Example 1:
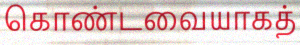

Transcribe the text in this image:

கொண்டவையாகத்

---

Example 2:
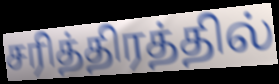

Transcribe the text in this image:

சரித்திரத்தில்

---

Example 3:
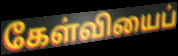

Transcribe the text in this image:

கேள்வியைப்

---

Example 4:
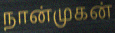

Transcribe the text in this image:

நான்முகன்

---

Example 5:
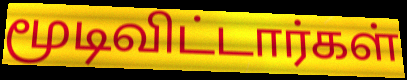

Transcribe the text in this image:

மூடிவிட்டார்கள்